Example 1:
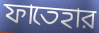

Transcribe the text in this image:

ফাতেহার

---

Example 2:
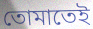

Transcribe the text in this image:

তোমাতেই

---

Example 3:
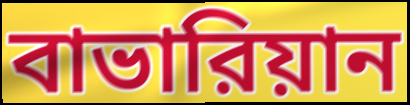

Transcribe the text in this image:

বাভারিয়ান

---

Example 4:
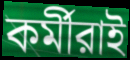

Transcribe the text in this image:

কর্মীরাই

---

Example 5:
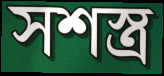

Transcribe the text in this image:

সশস্ত্র